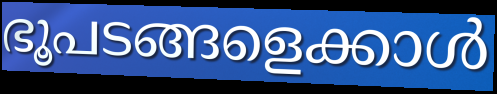
ഭൂപടങ്ങളെക്കാൾ